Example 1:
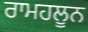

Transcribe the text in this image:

ਰਾਮਹਲੂਨ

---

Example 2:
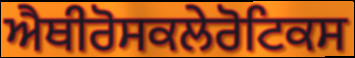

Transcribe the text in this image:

ਐਥੀਰੋਸਕਲੇਰੋਟਿਕਸ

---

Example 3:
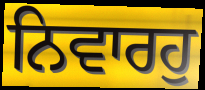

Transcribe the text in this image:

ਨਿਵਾਰਹੁ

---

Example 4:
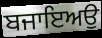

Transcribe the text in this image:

ਬਜਾਇਅਉ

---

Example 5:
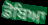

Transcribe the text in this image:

ਡੋਬਿਆ